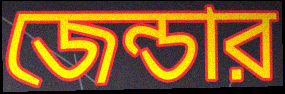
জেন্ডার